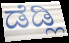
ಡೆಡ್ಲಿ